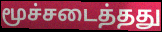
மூச்சடைத்தது